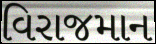
વિરાજમાન